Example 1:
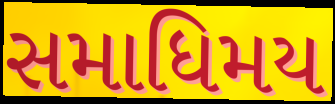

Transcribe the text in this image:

સમાધિમય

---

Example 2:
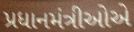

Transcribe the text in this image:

પ્રધાનમંત્રીઓએ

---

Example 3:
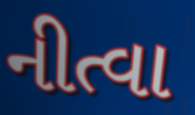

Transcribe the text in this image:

નીત્વા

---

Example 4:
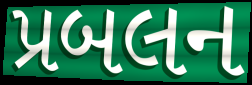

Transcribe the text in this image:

પ્રબલન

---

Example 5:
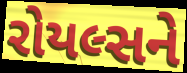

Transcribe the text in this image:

રોયલ્સને